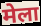
मेला